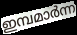
ഇമ്പമാർന്ന